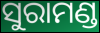
ସୁରାମଣ୍ଡ